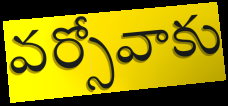
వర్సోవాకు